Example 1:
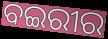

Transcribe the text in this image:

ବଇରୀର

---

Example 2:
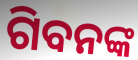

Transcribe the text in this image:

ଗିବନଙ୍କ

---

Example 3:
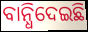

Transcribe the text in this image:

ବାନ୍ଧିଦେଇଛି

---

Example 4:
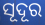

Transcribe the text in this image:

ସୂଦୂର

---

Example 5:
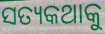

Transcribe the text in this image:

ସତ୍ୟକଥାକୁ